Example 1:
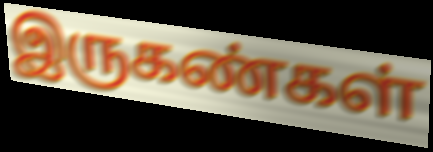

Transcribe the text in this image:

இருகண்கள்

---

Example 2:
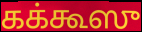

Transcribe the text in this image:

கக்கூஸு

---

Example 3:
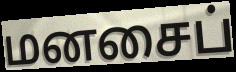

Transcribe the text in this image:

மனசைப்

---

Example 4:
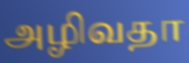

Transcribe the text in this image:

அழிவதா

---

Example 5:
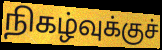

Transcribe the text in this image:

நிகழ்வுக்குச்